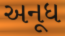
અનૂધ